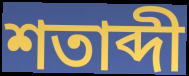
শতাব্দী